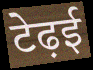
टेढ़ई